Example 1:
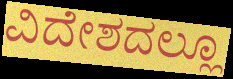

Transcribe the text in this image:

ವಿದೇಶದಲ್ಲೂ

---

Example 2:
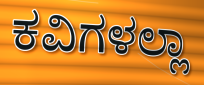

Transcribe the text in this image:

ಕವಿಗಳಲ್ಲಾ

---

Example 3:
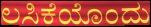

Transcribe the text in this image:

ಲಸಿಕೆಯೊಂದು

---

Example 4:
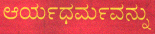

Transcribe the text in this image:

ಆರ್ಯಧರ್ಮವನ್ನು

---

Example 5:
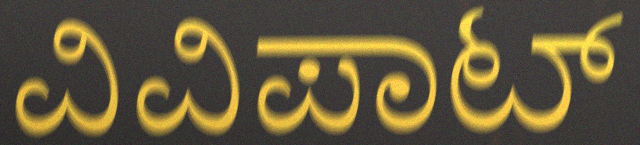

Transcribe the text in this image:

ವಿವಿಪಾಟ್